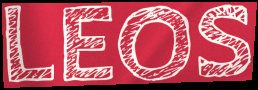
LEOS